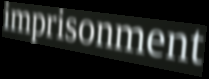
imprisonment